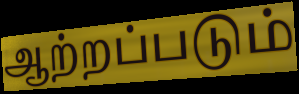
ஆற்றப்படும்